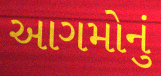
આગમોનું